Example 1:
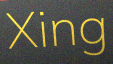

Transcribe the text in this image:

Xing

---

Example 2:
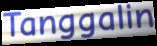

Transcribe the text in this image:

Tanggalin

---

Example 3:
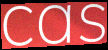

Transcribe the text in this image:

cas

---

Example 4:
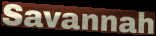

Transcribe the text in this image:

Savannah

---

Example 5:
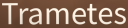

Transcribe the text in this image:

Trametes